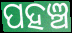
ପହଞ୍ଚ